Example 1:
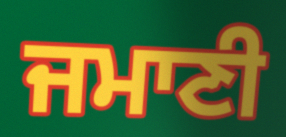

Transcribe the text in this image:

ਜਮਾਣੀ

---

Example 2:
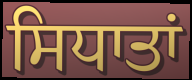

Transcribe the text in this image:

ਸਿਧਾਤਾਂ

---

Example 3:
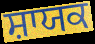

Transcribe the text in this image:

ਸ਼ਾਯਕ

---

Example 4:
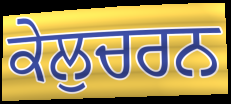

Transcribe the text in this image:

ਕੇਲੁਚਰਨ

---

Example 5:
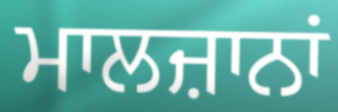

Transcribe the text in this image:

ਮਾਲਜ਼ਾਨਾਂ